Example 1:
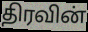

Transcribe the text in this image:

திரவின்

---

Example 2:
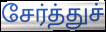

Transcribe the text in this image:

சேர்த்துச்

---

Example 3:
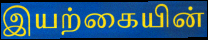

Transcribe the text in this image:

இயற்கையின்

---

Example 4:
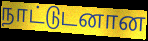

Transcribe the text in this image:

நாட்டுடனான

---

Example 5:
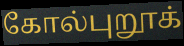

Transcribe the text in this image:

கோல்புறூக்